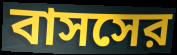
বাসসের